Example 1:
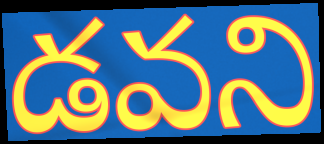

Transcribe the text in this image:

డవని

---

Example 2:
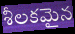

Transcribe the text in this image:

శీలకమైన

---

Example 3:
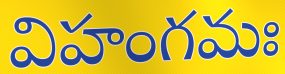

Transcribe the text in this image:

విహంగమః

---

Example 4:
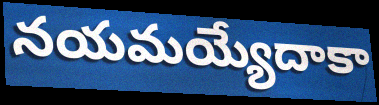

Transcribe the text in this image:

నయమయ్యేదాకా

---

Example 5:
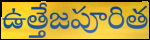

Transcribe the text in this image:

ఉత్తేజపూరిత